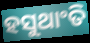
ହସୁଥାଂତି